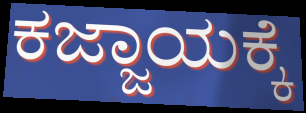
ಕಜ್ಜಾಯಕ್ಕೆ